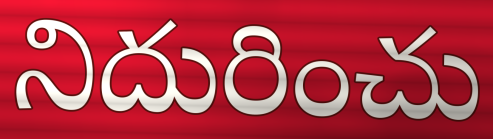
నిదురించు